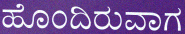
ಹೊಂದಿರುವಾಗ